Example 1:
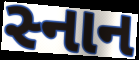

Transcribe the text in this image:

સ્નાન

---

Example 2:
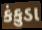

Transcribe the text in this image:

કંકુડા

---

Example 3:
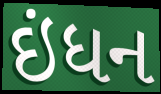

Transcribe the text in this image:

ઇંધન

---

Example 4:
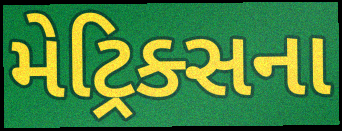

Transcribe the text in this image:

મેટ્રિક્સના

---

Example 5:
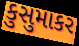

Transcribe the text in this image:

કુસુમાકર